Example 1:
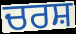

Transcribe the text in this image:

ਚਰਸ਼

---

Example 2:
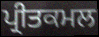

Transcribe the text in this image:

ਪ੍ਰੀਤਕਮਲ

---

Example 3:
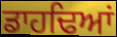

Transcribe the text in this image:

ਡਾਹਢਿਆਂ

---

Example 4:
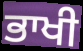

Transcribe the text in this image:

ਭਾਖੀ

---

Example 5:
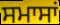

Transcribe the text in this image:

ਸਮਾਸਾਂ